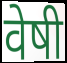
वेषी